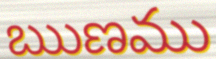
ఋణము